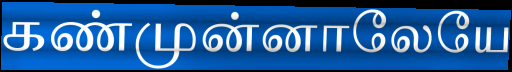
கண்முன்னாலேயே